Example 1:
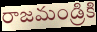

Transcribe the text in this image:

రాజమండ్రికి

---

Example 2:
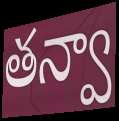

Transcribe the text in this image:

తన్వా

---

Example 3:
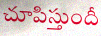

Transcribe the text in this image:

చూపిస్తుందీ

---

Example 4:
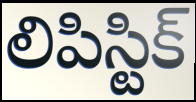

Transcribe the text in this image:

లిపిస్టిక్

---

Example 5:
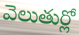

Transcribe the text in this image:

వెలుతుర్లో